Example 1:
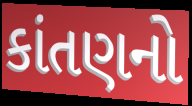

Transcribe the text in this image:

કાંતણનો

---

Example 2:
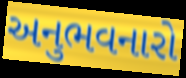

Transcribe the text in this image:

અનુભવનારો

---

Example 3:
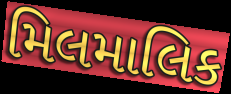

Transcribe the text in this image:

મિલમાલિક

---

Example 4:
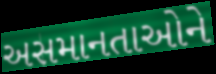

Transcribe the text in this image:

અસમાનતાઓને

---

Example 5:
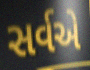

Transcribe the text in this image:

સર્વએ